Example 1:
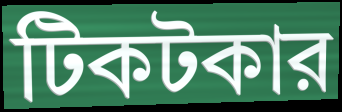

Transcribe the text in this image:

টিকটকার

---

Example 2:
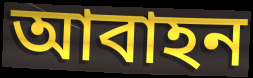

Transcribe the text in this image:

আবাহন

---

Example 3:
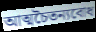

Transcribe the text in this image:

আত্মচৈতন্যবোধ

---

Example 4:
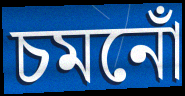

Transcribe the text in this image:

চমনোঁ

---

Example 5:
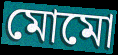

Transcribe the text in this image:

মোমো